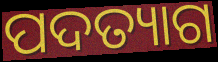
ପଦତ୍ୟାଗ